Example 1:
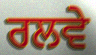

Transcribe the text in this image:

ਰਲਵੇ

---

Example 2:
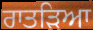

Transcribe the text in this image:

ਰਾਤੜਿਆ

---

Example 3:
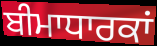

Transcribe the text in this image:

ਬੀਮਾਧਾਰਕਾਂ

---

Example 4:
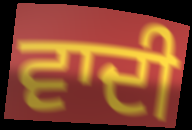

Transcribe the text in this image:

ਵਾਦੀ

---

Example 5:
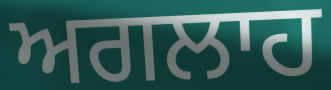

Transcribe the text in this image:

ਅਗਲਾਹ